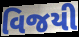
વિજયી